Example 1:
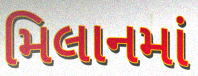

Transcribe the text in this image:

મિલાનમાં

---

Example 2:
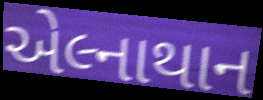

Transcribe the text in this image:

એલ્નાથાન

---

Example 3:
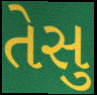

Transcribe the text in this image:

તેસુ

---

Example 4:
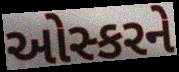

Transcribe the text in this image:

ઓસ્કરને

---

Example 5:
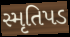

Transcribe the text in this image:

સ્મૃતિપડ